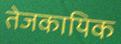
तेजकायिक